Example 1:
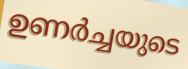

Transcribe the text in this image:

ഉണർച്ചയുടെ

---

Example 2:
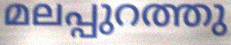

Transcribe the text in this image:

മലപ്പുറത്തു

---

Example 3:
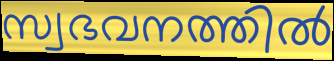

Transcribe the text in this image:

സ്വഭവനത്തിൽ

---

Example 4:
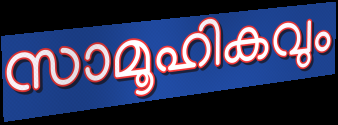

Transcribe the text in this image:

സാമൂഹികവും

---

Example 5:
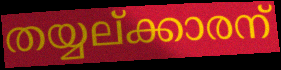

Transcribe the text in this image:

തയ്യല്ക്കാരന്